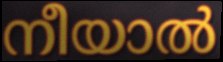
നീയാൽ